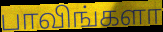
பாவிங்களா